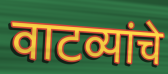
वाटव्यांचे